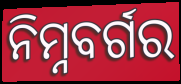
ନିମ୍ନବର୍ଗର